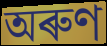
অৰুণ